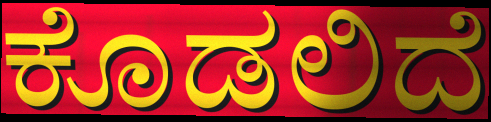
ಕೊಡಲಿದೆ